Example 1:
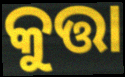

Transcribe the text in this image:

କୁତ୍ତା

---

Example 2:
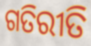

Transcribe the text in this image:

ଗତିରୀତି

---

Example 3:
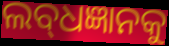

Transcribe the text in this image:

ଲବ୍‌ଧଜ୍ଞାନକୁ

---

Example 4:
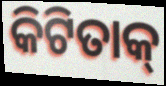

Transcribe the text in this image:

କିଟିତାକ୍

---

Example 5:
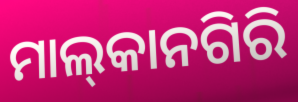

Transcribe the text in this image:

ମାଲ୍‌କାନଗିରି